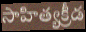
సాహిత్యక్రీడ